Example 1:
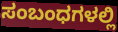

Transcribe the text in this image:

ಸಂಬಂಧಗಳಲ್ಲಿ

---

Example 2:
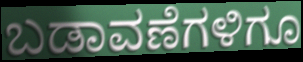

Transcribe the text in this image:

ಬಡಾವಣೆಗಳಿಗೂ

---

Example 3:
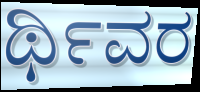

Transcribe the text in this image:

ರ್ಥಿವರ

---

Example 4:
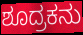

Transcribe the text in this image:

ಶೂದ್ರಕನು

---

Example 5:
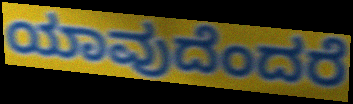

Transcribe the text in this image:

ಯಾವುದೆಂದರೆ